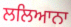
ਲਲਿਆਨਾ